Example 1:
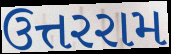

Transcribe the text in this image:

ઉત્તરરામ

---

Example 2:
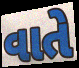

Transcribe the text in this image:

વાતે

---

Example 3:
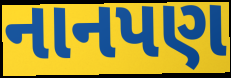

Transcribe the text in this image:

નાનપણ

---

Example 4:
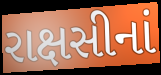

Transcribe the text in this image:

રાક્ષસીનાં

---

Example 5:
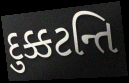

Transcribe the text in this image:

દુક્કટન્તિ